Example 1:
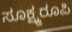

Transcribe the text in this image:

ಸೂಕ್ಷ್ಮರೂಪಿ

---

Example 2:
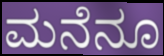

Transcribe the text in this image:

ಮನೆನೂ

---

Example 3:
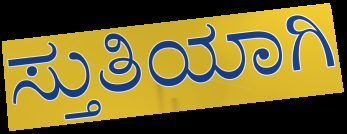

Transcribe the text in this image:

ಸ್ತುತಿಯಾಗಿ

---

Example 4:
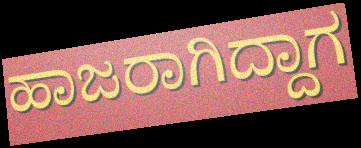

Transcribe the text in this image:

ಹಾಜರಾಗಿದ್ದಾಗ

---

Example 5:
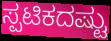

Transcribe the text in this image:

ಸ್ಪಟಿಕದಷ್ಟು